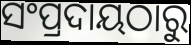
ସଂପ୍ରଦାୟଠାରୁ